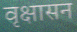
वृक्षासन